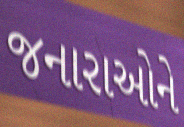
જનારાઓને